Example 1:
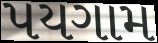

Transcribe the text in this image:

પયગામ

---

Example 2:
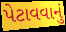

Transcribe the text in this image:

પેટાવવાનું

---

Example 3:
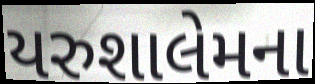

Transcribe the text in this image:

યરુશાલેમના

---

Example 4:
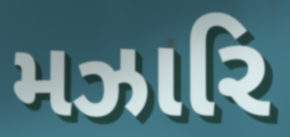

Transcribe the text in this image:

મઝારિ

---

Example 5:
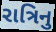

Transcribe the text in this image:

રાત્રિનુ